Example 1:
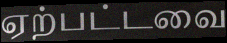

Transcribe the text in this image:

ஏற்பட்டவை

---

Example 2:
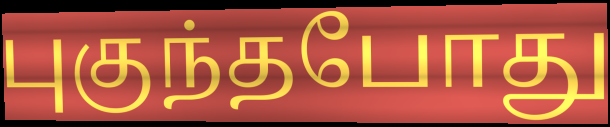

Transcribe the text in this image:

புகுந்தபோது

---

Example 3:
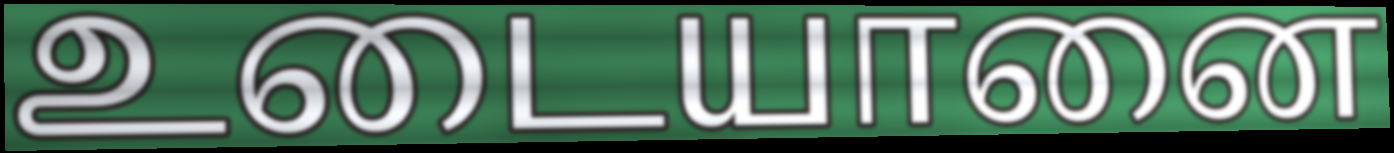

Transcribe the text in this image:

உடையானை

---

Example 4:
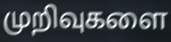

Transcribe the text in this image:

முறிவுகளை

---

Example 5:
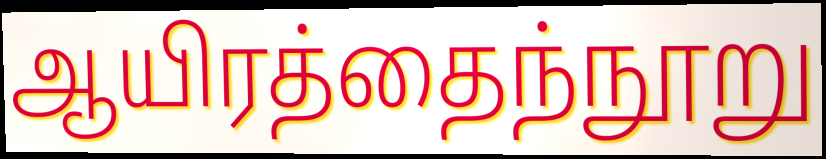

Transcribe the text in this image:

ஆயிரத்தைந்நூறு